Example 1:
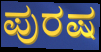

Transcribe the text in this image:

ಪುರಷ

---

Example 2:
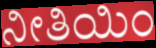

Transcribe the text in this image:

ನೀತಿಯಿಂ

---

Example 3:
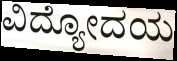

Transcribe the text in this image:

ವಿದ್ಯೋದಯ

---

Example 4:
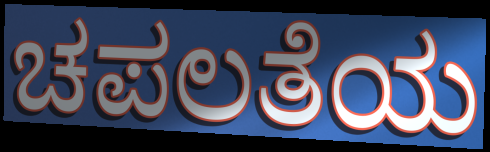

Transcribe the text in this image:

ಚಪಲತೆಯ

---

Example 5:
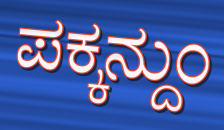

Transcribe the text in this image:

ಪಕ್ಕನ್ದುಂ